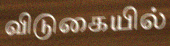
விடுகையில்